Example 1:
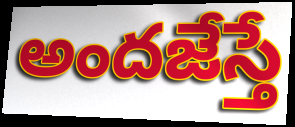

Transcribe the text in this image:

అందజేస్తే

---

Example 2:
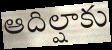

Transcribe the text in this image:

ఆదిల్షాకు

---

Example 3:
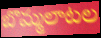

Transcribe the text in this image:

బొమ్మలాటల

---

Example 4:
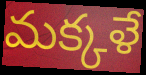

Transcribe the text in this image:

మక్కళే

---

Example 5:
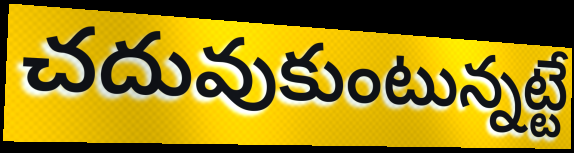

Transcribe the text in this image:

చదువుకుంటున్నట్టే